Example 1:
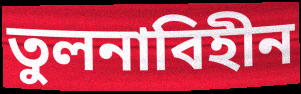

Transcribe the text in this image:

তুলনাবিহীন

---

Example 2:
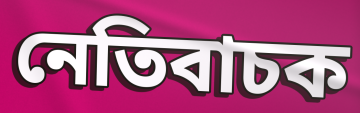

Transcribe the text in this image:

নেতিবাচক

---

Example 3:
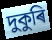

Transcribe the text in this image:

দুকুৰি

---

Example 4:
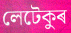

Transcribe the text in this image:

লেটেকুৰ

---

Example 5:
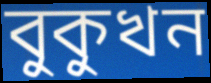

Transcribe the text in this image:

বুকুখন